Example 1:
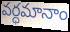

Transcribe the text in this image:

వర్ధమానాం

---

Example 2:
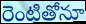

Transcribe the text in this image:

రెంటితోనూ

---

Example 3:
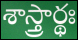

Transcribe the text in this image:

శాస్త్రార్థః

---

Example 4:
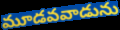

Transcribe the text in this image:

మూడవవాడును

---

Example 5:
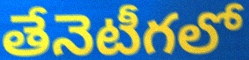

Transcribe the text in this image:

తేనెటీగలో